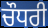
ਚੌਧਰੀ